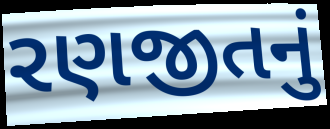
રણજીતનું